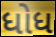
ધોધ